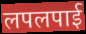
लपलपाई